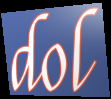
dol